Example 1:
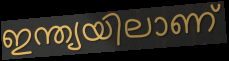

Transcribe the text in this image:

ഇന്ത്യയിലാണ്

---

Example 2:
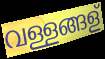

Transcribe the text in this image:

വള്ളങ്ങള്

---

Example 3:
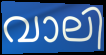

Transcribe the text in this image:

വാലി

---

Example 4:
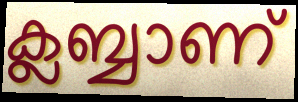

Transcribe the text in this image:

ക്ലബ്ബാണ്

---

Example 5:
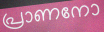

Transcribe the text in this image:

പ്രാണനോ